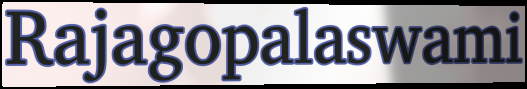
Rajagopalaswami